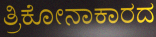
ತ್ರಿಕೋನಾಕಾರದ